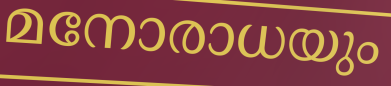
മനോരാധയും